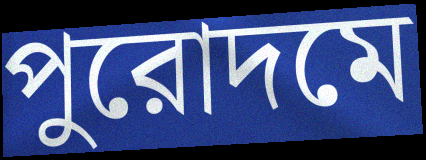
পুরোদমে